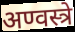
अण्वस्त्रे